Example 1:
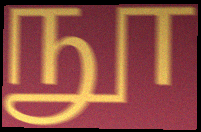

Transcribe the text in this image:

நூ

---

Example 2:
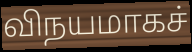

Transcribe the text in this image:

விநயமாகச்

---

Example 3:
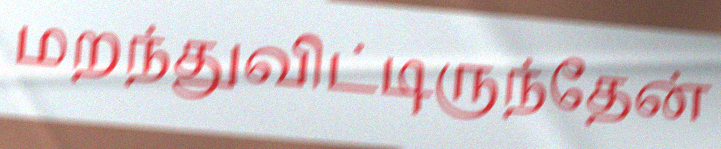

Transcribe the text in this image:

மறந்துவிட்டிருந்தேன்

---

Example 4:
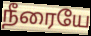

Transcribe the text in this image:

நீரையே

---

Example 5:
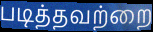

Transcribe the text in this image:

படித்தவற்றை